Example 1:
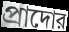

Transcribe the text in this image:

প্রাদোর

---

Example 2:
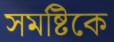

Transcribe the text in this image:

সমষ্টিকে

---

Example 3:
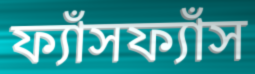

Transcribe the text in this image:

ফ্যাঁসফ্যাঁস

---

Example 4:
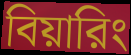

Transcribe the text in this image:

বিয়ারিং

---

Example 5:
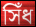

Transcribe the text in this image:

সিঁধ